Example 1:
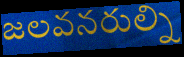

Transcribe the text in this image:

జలవనరుల్ని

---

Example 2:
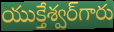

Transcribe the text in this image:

యుక్తేశ్వర్‌గారు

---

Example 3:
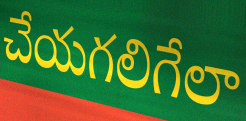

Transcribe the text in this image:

చేయగలిగేలా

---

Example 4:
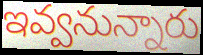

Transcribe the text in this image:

ఇవ్వనున్నారు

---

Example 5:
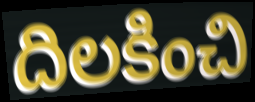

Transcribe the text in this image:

దిలకించి